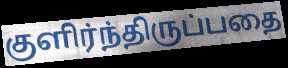
குளிர்ந்திருப்பதை